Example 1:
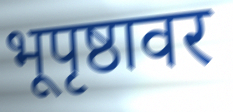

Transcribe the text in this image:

भूपृष्ठावर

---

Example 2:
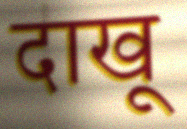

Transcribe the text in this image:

दाखू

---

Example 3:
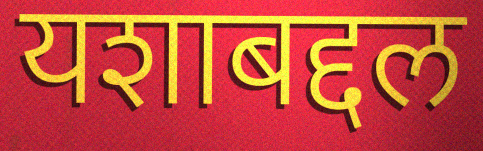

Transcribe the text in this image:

यशाबद्दल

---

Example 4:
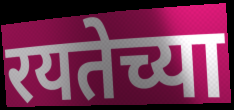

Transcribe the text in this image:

रयतेच्या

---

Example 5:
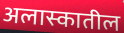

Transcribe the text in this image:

अलास्कातील